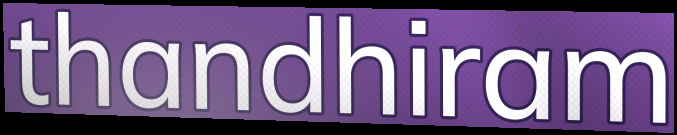
thandhiram